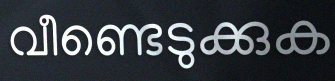
വീണ്ടെടുക്കുക